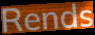
Rends